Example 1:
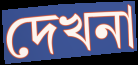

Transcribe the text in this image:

দেখনা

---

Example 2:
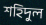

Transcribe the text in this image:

শহিদুল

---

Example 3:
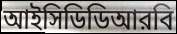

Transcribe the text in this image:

আইসিডিডিআরবি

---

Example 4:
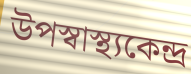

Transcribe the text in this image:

উপস্বাস্থ্যকেন্দ্র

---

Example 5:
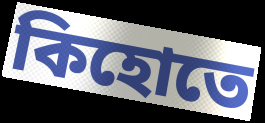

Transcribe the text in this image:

কিহোতে